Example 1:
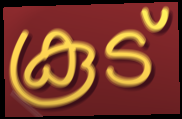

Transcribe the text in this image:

കൂട്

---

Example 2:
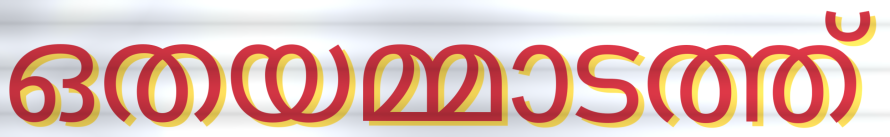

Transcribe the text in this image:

ഒതയമ്മാടത്ത്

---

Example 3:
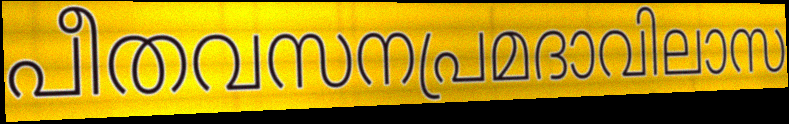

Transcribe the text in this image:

പീതവസനപ്രമദാവിലാസ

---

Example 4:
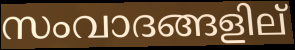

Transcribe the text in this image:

സംവാദങ്ങളില്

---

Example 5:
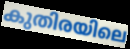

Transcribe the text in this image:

കുതിരയിലെ